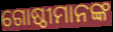
ଗୋଷ୍ଠୀମାନଙ୍କ